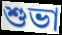
শুভা